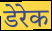
डेरेक